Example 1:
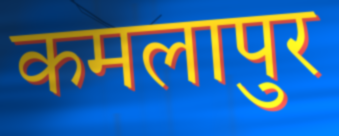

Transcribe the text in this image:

कमलापुर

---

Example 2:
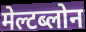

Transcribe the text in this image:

मेल्टब्लोन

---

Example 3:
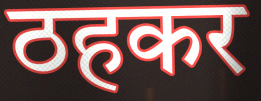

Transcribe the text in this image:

ठहकर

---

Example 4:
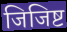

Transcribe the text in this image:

जिजिष्ट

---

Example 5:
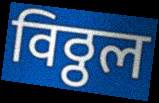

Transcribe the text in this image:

विठ्ठल